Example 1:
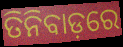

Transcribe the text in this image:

ତିନିବାଡ଼ରେ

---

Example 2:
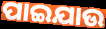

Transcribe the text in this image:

ପାଇଯାଉ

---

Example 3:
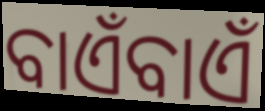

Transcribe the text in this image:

ବାଏଁବାଏଁ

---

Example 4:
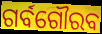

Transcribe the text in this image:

ଗର୍ବଗୌରବ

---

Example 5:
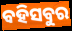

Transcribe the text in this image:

ବହିସବୁର